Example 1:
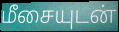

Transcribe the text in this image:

மீசையுடன்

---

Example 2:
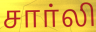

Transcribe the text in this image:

சார்லி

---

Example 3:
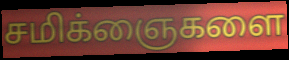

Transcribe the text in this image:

சமிக்ஞைகளை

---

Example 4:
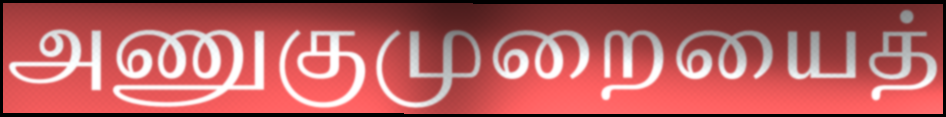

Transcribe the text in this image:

அணுகுமுறையைத்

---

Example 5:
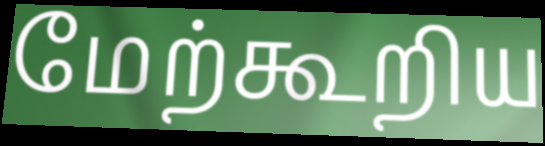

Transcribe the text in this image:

மேற்கூறிய